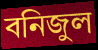
বনিজুল